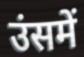
उंसमें